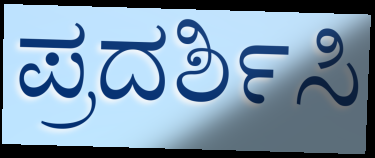
ಪ್ರದರ್ಶಿಸಿ